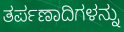
ತರ್ಪಣಾದಿಗಳನ್ನು